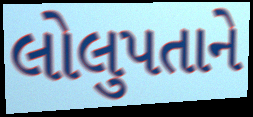
લોલુપતાને